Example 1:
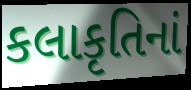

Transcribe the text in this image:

કલાકૃતિનાં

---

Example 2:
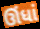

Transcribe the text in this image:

ઊંધાં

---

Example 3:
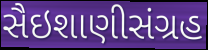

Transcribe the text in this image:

સૈઇશાણીસંગ્રહ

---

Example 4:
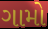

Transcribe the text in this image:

ગામો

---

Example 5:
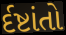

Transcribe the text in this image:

ર્દષ્ટાંતો